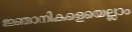
ജ്ഞാനികളെയെല്ലാം